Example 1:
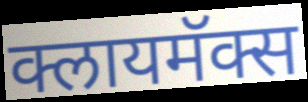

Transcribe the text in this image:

क्लायमॅक्स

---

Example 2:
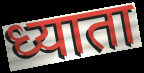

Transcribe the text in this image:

ध्याता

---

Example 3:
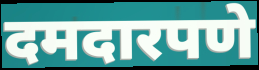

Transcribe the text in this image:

दमदारपणे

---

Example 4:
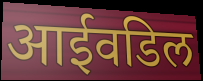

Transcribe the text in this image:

आईवडिल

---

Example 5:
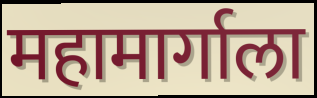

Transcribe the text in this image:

महामार्गाला